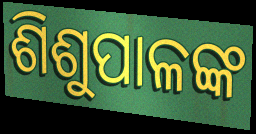
ଶିଶୁପାଳଙ୍କ